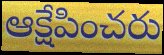
ఆక్షేపించరు